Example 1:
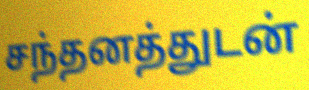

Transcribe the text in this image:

சந்தனத்துடன்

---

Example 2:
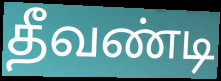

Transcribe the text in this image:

தீவண்டி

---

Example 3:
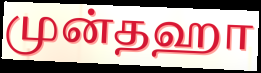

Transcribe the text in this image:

முன்தஹா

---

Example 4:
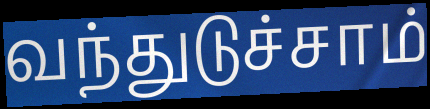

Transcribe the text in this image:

வந்துடுச்சாம்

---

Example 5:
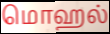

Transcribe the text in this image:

மொஹல்